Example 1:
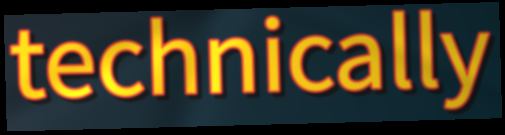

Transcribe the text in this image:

technically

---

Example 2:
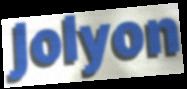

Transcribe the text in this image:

Jolyon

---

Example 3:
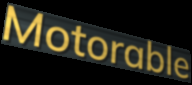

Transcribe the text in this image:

Motorable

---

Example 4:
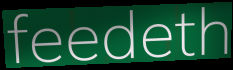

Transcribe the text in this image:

feedeth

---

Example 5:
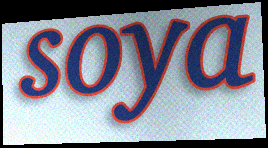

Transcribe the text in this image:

soya